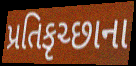
પ્રતિકૃચ્છાના